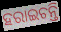
ହରାଇଚନ୍ତି